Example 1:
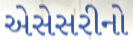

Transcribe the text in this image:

એસેસરીનો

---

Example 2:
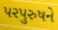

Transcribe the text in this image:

પરપુરુષને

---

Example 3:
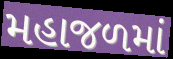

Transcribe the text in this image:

મહાજળમાં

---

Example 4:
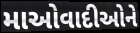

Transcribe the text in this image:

માઓવાદીઓને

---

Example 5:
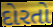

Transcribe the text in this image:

દોરતો